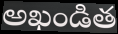
అఖండిత